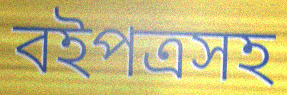
বইপত্রসহ